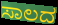
ಸಾಲದ